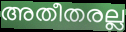
അതീതരല്ല